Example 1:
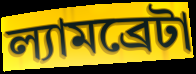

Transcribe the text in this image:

ল্যামব্রেটা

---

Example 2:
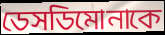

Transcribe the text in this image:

ডেসডিমোনাকে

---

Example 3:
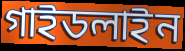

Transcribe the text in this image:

গাইডলাইন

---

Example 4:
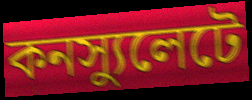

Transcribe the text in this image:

কনস্যুলেটে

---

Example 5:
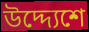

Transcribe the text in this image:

উদ্দ্যেশে